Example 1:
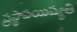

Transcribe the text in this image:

ప్రస్థాపయిష్యతి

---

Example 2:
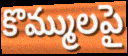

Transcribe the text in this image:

కొమ్ములపై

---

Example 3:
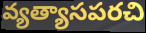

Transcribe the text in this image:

వ్యత్యాసపరచి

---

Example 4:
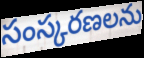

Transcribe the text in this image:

సంస్కరణలను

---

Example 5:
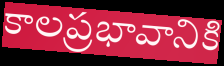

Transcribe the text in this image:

కాలప్రభావానికి